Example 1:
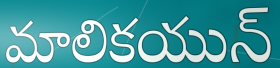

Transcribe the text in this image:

మాలికయున్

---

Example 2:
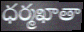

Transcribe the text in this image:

ధర్మఖాతా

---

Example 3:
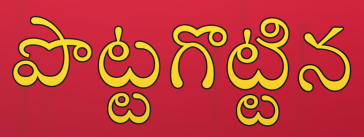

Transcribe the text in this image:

పొట్టగొట్టిన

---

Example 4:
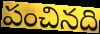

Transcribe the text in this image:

పంచినది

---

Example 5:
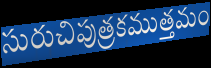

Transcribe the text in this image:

సురుచిపుత్రకముత్తమం